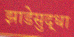
झाडेसुद्धा